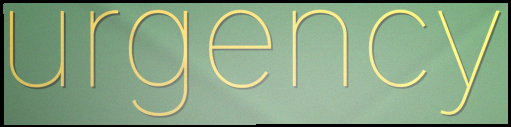
urgency